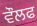
ਵੌਲਫ